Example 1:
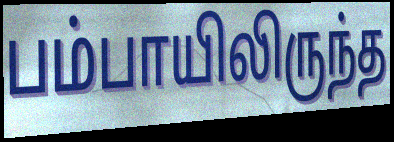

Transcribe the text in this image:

பம்பாயிலிருந்த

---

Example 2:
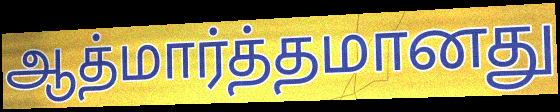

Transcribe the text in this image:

ஆத்மார்த்தமானது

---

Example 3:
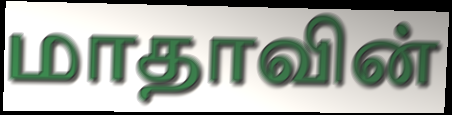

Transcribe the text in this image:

மாதாவின்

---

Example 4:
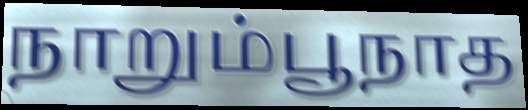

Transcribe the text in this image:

நாறும்பூநாத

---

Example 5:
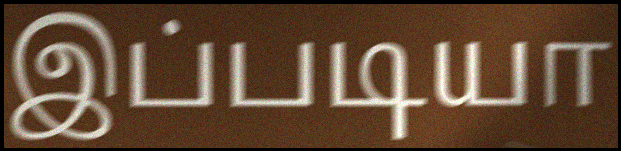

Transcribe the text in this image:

இப்படியா